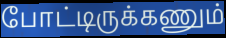
போட்டிருக்கணும்